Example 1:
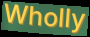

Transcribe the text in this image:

Wholly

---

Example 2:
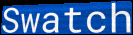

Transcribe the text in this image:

Swatch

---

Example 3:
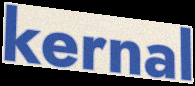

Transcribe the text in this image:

kernal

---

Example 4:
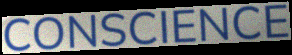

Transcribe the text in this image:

CONSCIENCE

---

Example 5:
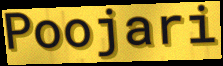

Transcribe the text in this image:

Poojari